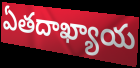
ఏతదాఖ్యాయ